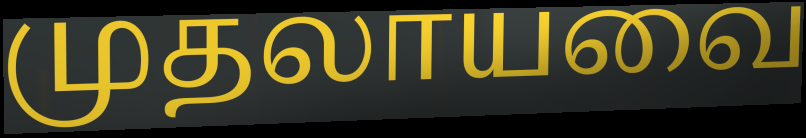
முதலாயவை